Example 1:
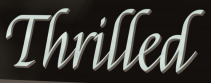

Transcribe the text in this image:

Thrilled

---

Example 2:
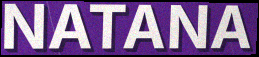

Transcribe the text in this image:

NATANA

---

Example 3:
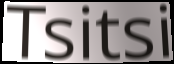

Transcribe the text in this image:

Tsitsi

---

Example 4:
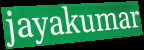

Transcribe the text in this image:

jayakumar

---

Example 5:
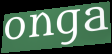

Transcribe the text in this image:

onga